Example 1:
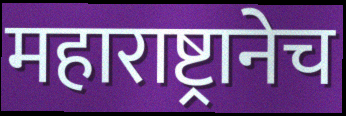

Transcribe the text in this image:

महाराष्ट्रानेच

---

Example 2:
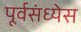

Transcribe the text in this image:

पूर्वसंध्येस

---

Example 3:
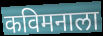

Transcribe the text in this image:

कविमनाला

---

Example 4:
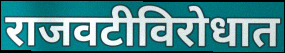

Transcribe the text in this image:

राजवटीविरोधात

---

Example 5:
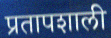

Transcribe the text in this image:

प्रतापशाली